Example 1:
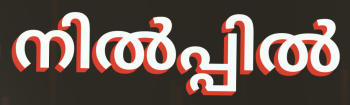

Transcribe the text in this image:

നിൽപ്പിൽ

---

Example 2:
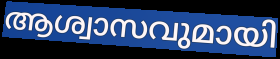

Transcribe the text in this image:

ആശ്വാസവുമായി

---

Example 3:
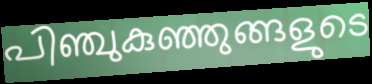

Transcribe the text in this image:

പിഞ്ചുകുഞ്ഞുങ്ങളുടെ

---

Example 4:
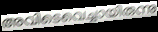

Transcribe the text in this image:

അവിടെവെച്ചായിരുന്നു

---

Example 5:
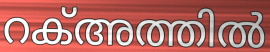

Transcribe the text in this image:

റക്അത്തിൽ